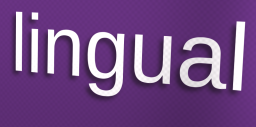
lingual